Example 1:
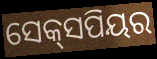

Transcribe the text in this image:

ସେକ୍‍ସପିୟର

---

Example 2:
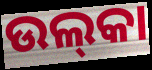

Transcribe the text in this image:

ଉଲ୍‌କା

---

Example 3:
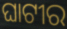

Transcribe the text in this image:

ଘାଟୀର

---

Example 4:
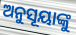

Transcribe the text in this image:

ଅନୁସୂୟାଙ୍କୁ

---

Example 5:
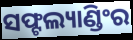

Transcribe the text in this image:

ସଫ୍ଟଲ୍ୟାଣ୍ଡିଂର